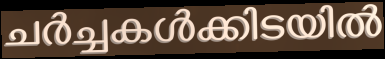
ചർച്ചകൾക്കിടയിൽ